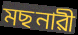
মছনাৱী